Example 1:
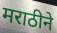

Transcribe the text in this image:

मराठीने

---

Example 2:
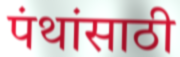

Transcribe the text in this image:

पंथांसाठी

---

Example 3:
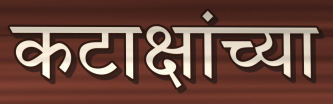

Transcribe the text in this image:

कटाक्षांच्या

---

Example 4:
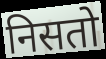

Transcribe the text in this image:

निसतो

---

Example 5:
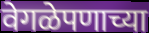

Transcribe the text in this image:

वेगळेपणाच्या